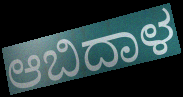
ಆಬಿದಾಳ